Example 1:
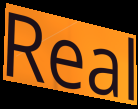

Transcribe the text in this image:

Real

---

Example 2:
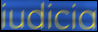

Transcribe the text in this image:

iudicia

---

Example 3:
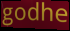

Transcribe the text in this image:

godhe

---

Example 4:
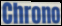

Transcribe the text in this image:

Chrono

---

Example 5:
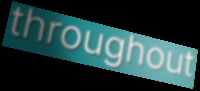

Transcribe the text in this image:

throughout